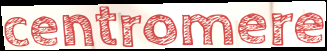
centromere